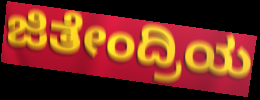
ಜಿತೇಂದ್ರಿಯ